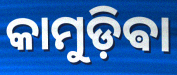
କାମୁଡ଼ିଵା